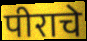
पीराचे